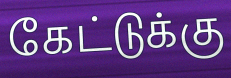
கேட்டுக்கு